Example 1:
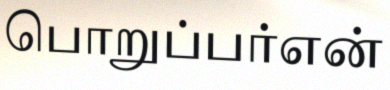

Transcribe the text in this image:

பொறுப்பர்என்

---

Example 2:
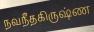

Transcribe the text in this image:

நவநீதகிருஷ்ண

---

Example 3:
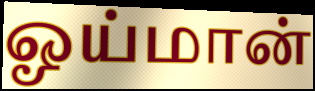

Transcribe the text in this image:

ஓய்மான்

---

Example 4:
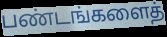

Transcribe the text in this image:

பண்டங்களைத்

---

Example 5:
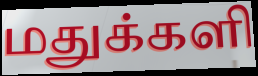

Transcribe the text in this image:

மதுக்களி